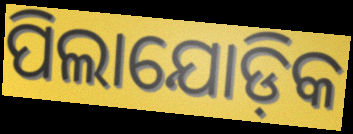
ପିଲାଯୋଡ଼ିକ